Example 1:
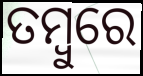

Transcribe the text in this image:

ତମ୍ବୁରେ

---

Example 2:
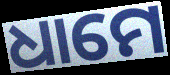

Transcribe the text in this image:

ଧାମେ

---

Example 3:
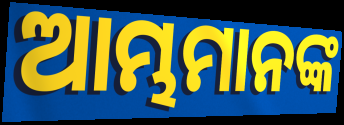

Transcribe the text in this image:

ଆମ୍ଭମାନଙ୍କ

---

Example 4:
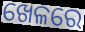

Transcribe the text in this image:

ଖେଳରେ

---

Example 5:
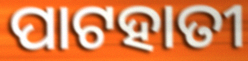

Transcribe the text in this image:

ପାଟହାତୀ